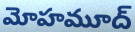
మోహమూద్